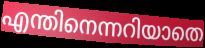
എന്തിനെന്നറിയാതെ